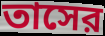
তাসের